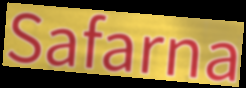
Safarna